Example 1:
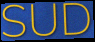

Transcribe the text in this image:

SUD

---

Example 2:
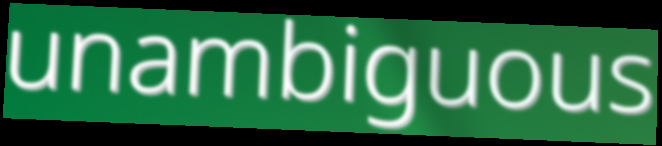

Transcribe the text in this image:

unambiguous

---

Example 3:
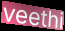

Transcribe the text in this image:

veethi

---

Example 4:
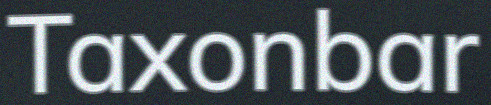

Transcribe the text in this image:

Taxonbar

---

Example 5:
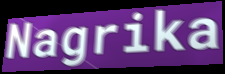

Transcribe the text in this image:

Nagrika